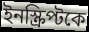
ইনস্ক্রিপ্টকে